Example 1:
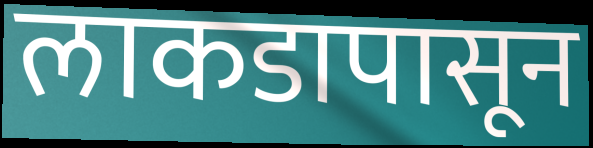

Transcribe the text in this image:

लाकडापासून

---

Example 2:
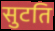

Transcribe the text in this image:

सुटति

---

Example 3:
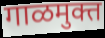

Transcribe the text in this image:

गाळमुक्त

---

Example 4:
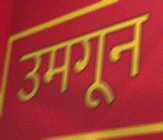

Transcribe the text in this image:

उमगून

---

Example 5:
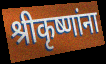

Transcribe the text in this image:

श्रीकृष्णांना